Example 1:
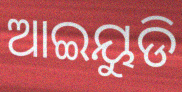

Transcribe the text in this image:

ଆଇୟୁଡି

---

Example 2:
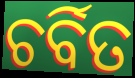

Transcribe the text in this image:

ଚର୍ବିତ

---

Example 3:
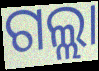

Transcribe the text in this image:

ଗଲ୍ଲା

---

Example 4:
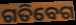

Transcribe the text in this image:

ଗତିବେଗ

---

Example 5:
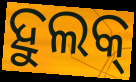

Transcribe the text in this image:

ହୁଲକ୍